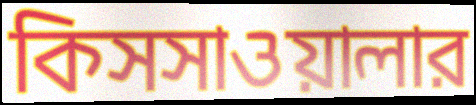
কিসসাওয়ালার